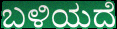
ಬಳಿಯದೆ